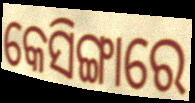
କେସିଙ୍ଗାରେ